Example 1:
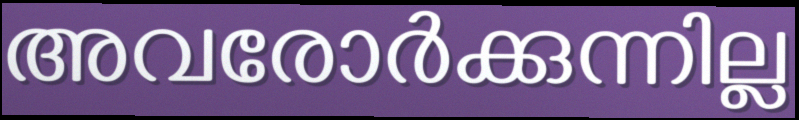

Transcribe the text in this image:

അവരോർക്കുന്നില്ല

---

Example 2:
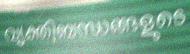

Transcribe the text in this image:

വ്യക്തിബന്ധങ്ങളുടെ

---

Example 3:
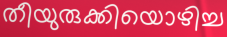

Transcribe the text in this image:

തീയുരുക്കിയൊഴിച്ച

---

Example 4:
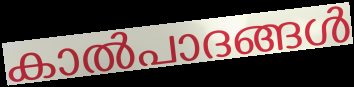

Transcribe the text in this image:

കാൽപാദങ്ങൾ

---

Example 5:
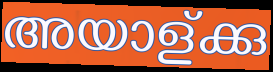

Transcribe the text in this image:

അയാള്ക്കു